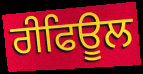
ਰੀਫਿਊਲ